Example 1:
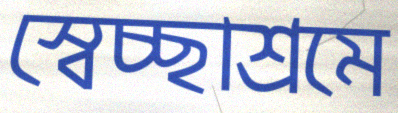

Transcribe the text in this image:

স্বেচ্ছাশ্রমে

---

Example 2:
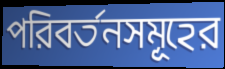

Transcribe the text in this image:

পরিবর্তনসমূহের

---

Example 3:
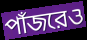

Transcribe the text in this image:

পাঁজরেও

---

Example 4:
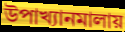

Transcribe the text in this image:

উপাখ্যানমালায়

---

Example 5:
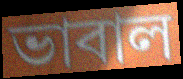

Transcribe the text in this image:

ভাবাল